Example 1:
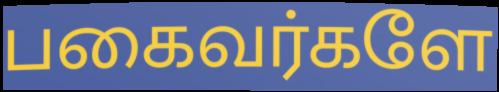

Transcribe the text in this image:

பகைவர்களே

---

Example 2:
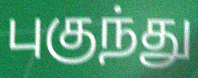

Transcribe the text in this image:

புகுந்து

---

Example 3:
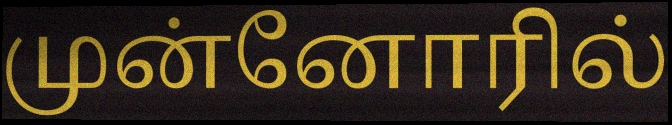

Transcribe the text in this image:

முன்னோரில்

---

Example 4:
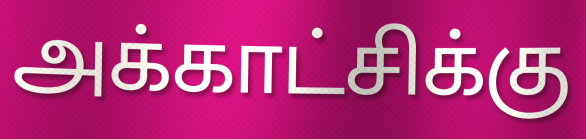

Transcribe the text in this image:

அக்காட்சிக்கு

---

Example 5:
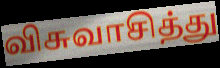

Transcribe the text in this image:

விசுவாசித்து